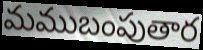
మముబంపుతార